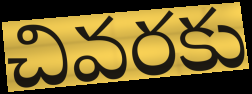
చివరకు